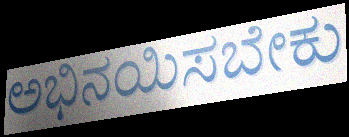
ಅಭಿನಯಿಸಬೇಕು